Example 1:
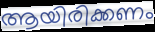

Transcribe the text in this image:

ആയിരിക്കണം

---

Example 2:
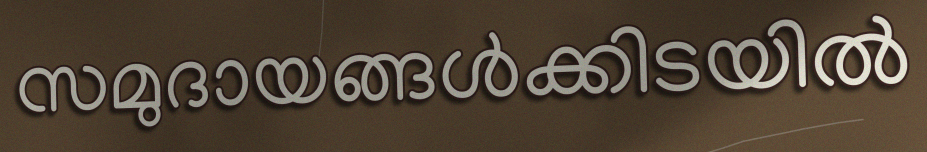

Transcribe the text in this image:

സമുദായങ്ങൾക്കിടയിൽ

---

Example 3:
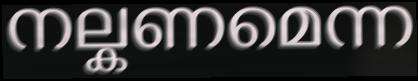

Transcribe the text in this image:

നല്കണമെന്ന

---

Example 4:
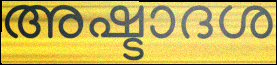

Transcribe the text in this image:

അഷ്ടാദശ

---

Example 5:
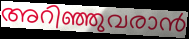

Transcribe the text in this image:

അറിഞ്ഞുവരാൻ